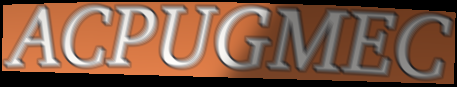
ACPUGMEC